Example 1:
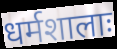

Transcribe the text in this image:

धर्मशालाः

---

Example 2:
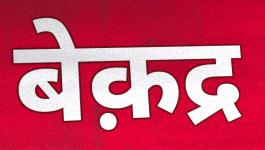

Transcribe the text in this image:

बेक़द्र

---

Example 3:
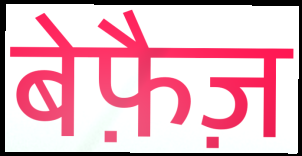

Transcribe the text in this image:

बेफ़ैज़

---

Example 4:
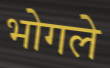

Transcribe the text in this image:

भोगले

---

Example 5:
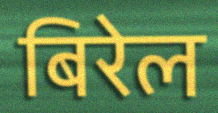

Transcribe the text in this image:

बिरेल